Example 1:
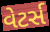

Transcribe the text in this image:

વેટર્સ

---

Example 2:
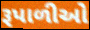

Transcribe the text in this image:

રૂપાળીઓ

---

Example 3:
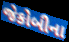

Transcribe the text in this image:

જેકોબીના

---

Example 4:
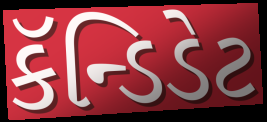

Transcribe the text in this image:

કૅન્ડિડેટ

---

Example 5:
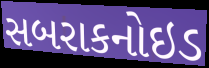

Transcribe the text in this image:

સબરાકનોઇડ